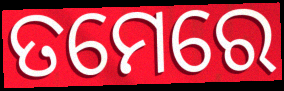
ତମେରେ